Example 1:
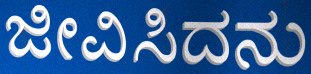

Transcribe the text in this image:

ಜೀವಿಸಿದನು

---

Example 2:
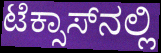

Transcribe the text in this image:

ಟೆಕ್ಸಾಸ್‌ನಲ್ಲಿ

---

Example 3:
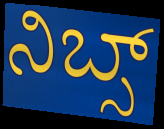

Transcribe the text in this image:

ನಿಬ್ಸ್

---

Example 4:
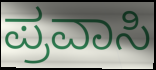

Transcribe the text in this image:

ಪ್ರವಾಸಿ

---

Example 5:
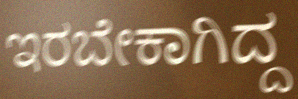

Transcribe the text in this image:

ಇರಬೇಕಾಗಿದ್ದ